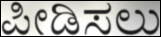
ಪೀಡಿಸಲು